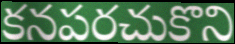
కనపరచుకొని